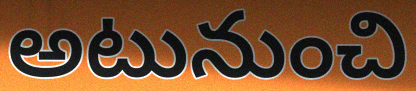
అటునుంచి